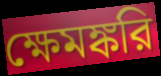
ক্ষেমঙ্করি